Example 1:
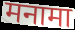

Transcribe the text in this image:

मनामा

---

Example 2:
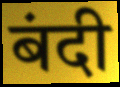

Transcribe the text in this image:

बंदी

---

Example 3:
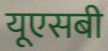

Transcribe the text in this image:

यूएसबी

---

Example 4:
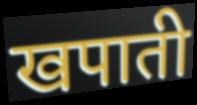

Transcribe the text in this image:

खपाती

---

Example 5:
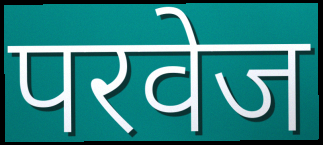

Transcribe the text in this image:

परवेज